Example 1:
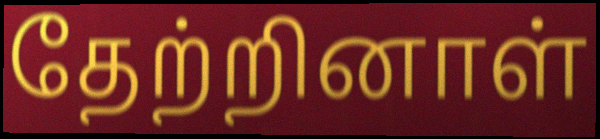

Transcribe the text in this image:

தேற்றினாள்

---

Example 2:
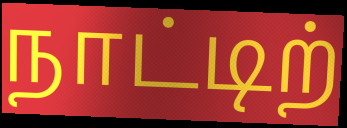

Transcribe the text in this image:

நாட்டிற்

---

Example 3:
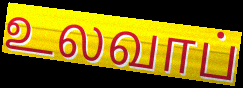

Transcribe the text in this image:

உலவாப்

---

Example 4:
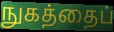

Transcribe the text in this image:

நுகத்தைப்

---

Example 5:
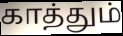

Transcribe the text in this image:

காத்தும்